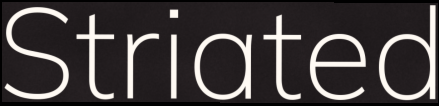
Striated